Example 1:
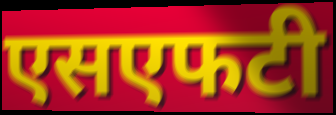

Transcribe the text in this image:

एसएफटी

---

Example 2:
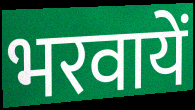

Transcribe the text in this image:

भरवायें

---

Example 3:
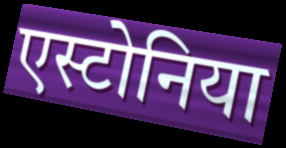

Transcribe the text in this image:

एस्टोनिया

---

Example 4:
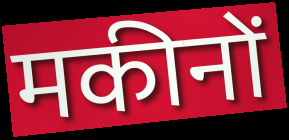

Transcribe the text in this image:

मकीनों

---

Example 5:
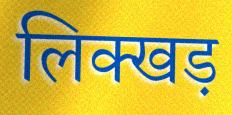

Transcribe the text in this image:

लिक्खड़